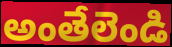
అంతేలెండి